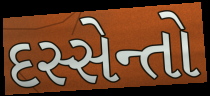
દસ્સેન્તો